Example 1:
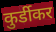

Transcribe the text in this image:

कुर्डीकर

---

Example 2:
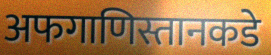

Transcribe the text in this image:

अफगाणिस्तानकडे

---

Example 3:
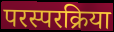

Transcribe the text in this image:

परस्परक्रिया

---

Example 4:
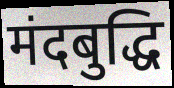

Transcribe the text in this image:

मंदबुद्धि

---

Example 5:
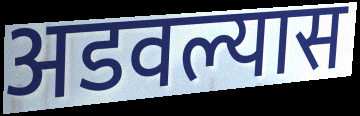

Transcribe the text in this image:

अडवल्यास